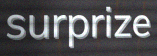
surprize